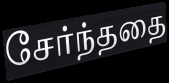
சேர்ந்ததை